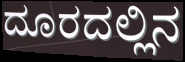
ದೂರದಲ್ಲಿನ